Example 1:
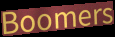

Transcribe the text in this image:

Boomers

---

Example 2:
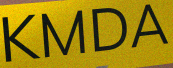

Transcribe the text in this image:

KMDA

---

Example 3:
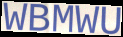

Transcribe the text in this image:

WBMWU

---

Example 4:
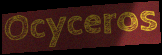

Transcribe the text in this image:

Ocyceros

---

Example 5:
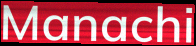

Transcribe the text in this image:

Manachi